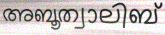
അബൂത്വാലിബ്